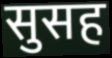
सुसह